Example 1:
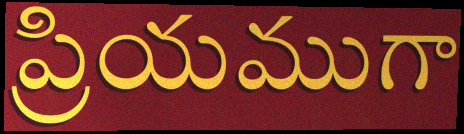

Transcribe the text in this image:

ప్రియముగా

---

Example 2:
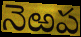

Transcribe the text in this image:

నెఱప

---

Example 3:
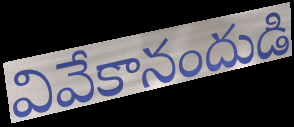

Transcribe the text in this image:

వివేకానందుడి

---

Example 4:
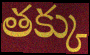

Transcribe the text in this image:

తక్కు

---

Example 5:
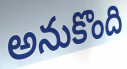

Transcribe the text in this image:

అనుకొంది